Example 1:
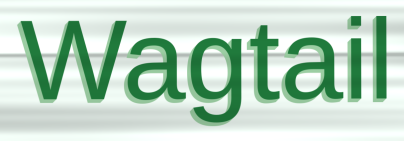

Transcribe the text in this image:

Wagtail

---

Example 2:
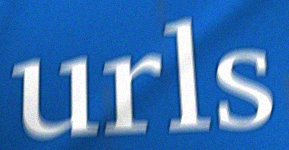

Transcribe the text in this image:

urls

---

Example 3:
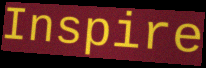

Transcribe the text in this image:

Inspire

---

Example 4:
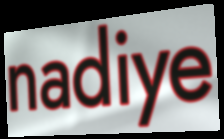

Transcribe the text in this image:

nadiye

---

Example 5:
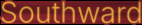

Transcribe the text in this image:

Southward